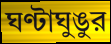
ঘণ্টাঘুঙুর